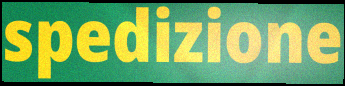
spedizione